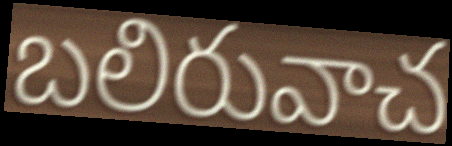
బలిరువాచ